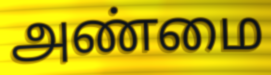
அண்மை